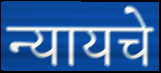
न्यायचे